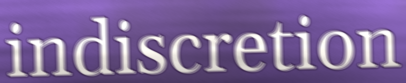
indiscretion